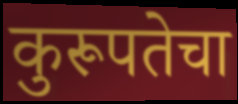
कुरूपतेचा